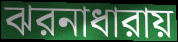
ঝরনাধারায়